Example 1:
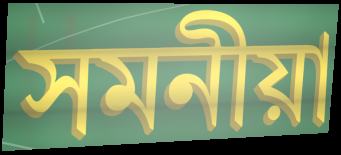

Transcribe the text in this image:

সমনীয়া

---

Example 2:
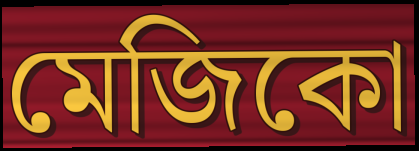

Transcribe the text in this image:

মেজিকো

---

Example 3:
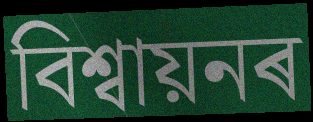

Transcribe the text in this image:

বিশ্ৱায়নৰ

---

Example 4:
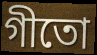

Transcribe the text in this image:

গীতো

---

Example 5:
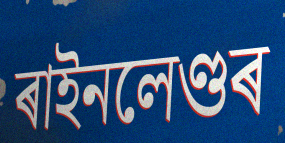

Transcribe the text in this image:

ৰাইনলেণ্ডৰ